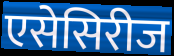
एसेसिरीज